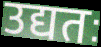
उद्यतः